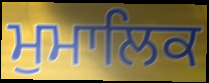
ਮੁਮਾਲਿਕ